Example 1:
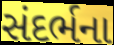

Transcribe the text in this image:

સંદર્ભના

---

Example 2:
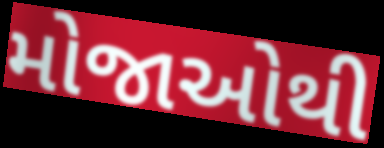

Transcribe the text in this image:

મોજાઓથી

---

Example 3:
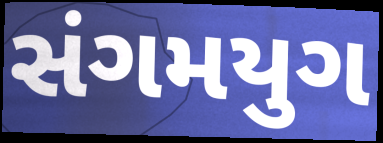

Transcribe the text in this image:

સંગમયુગ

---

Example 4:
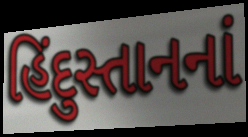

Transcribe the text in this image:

હિંદુસ્તાનનાં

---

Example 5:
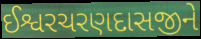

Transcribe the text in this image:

ઈશ્વરચરણદાસજીને